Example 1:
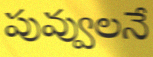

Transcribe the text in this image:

పువ్వులనే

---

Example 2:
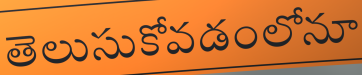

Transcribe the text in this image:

తెలుసుకోవడంలోనూ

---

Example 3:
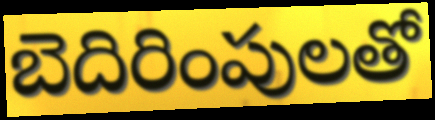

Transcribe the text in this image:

బెదిరింపులతో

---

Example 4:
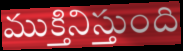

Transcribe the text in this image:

ముక్తినిస్తుంది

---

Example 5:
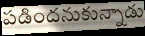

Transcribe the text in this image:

పడిందనుకున్నాడు